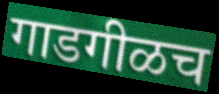
गाडगीळच